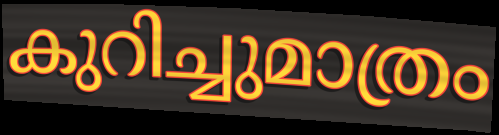
കുറിച്ചുമാത്രം